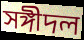
সঙ্গীদল